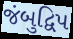
જંબુદ્વિપ